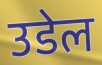
उडेल